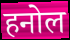
हनोल